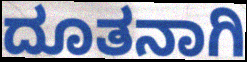
ದೂತನಾಗಿ